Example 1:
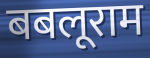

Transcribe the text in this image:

बबलूराम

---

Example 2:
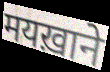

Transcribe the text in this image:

मयख़ाने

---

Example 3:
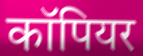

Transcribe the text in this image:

कॉपियर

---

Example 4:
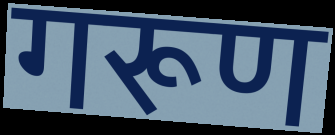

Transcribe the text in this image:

गरूण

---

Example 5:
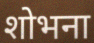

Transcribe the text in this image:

शोभना